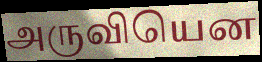
அருவியென